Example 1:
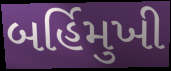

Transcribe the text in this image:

બર્હિમુખી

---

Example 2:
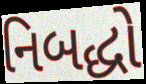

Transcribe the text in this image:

નિબદ્ધો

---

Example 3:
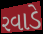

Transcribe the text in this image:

રવાડે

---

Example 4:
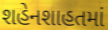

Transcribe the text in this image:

શહેનશાહતમાં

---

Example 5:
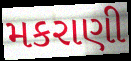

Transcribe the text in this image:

મકરાણી